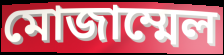
মোজাম্মেল